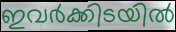
ഇവർക്കിടയിൽ